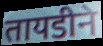
तायडीने